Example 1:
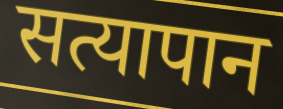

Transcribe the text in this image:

सत्यापान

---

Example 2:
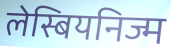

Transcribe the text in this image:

लेस्बियनिज्म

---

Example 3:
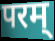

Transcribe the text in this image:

परम्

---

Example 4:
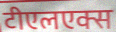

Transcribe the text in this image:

टीएलएक्स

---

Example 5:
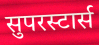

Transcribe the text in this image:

सुपरस्‍टार्स